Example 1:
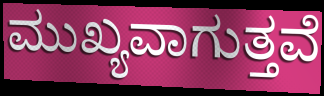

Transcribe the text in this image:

ಮುಖ್ಯವಾಗುತ್ತವೆ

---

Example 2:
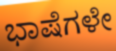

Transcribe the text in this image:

ಭಾಷೆಗಳೇ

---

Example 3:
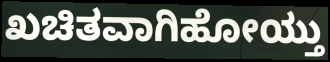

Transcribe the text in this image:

ಖಚಿತವಾಗಿಹೋಯ್ತು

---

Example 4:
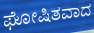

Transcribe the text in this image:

ಘೋಷಿತವಾದ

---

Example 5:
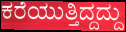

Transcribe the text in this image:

ಕರೆಯುತ್ತಿದ್ದದ್ದು